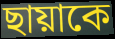
ছায়াকে